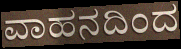
ವಾಹನದಿಂದ